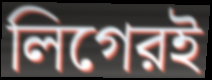
লিগেরই